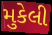
મુકેલી